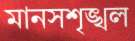
মানসশৃঙ্খল